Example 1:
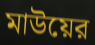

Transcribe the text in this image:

মাউয়ের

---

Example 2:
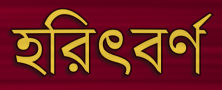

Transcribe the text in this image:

হরিৎবর্ণ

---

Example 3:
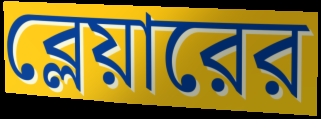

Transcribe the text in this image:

ব্লেয়ারের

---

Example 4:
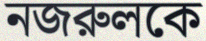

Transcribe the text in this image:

নজরুলকে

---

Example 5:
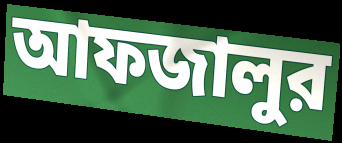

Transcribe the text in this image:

আফজালুর